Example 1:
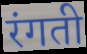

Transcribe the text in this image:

रंगती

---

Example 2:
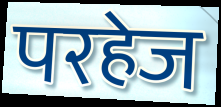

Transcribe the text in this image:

परहेज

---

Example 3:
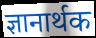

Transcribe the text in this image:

ज्ञानार्थक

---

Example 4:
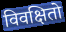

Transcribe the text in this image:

विवक्षितो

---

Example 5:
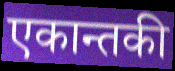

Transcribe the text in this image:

एकान्तकी